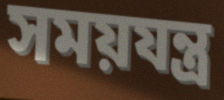
সময়যন্ত্র